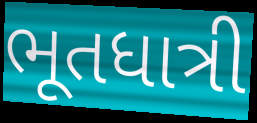
ભૂતધાત્રી